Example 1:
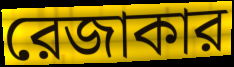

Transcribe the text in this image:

রেজাকার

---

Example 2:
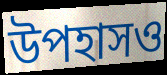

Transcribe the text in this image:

উপহাসও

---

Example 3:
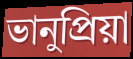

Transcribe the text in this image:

ভানুপ্রিয়া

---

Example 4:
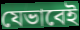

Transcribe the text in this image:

যেভাবেই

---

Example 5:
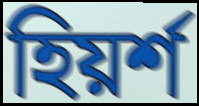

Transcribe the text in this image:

হিয়র্শ